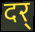
दर्